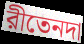
রীতেনদা